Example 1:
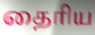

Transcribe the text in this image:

தைரிய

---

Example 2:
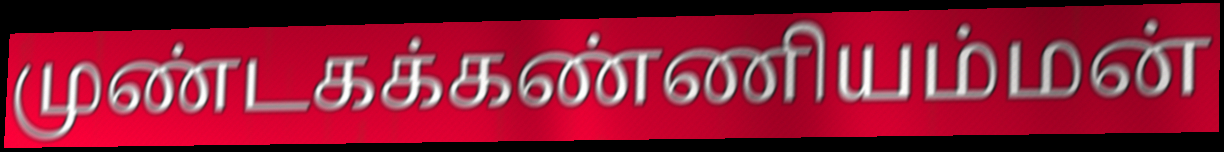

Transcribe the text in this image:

முண்டகக்கண்ணியம்மன்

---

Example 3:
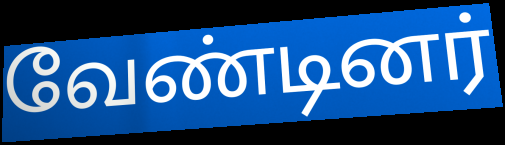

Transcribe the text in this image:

வேண்டினர்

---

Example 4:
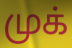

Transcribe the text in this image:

முக்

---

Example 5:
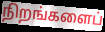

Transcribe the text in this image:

நிறங்களைப்